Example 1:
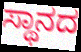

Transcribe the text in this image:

ಸ್ಥಾನದ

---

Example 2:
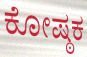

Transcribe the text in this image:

ಕೋಷ್ಠಕ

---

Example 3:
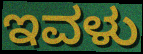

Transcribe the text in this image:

ಇವಳು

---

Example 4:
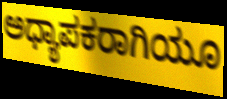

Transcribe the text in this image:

ಅಧ್ಯಾಪಕರಾಗಿಯೂ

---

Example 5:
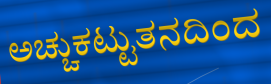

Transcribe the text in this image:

ಅಚ್ಚುಕಟ್ಟುತನದಿಂದ